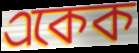
একেক